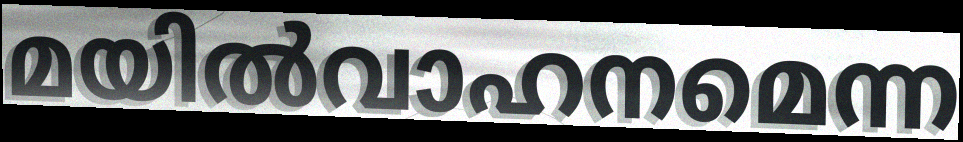
മയിൽവാഹനമെന്ന